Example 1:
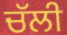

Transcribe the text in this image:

ਚੱਲੀ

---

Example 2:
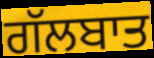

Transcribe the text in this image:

ਗੱਲਬਾਤ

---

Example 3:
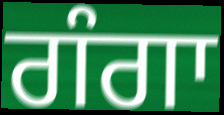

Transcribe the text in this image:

ਗੰਗਾ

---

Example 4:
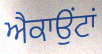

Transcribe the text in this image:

ਐਕਾਉਂਟਾਂ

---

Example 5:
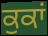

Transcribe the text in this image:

ਕੁਕਾਂ